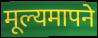
मूल्यमापने